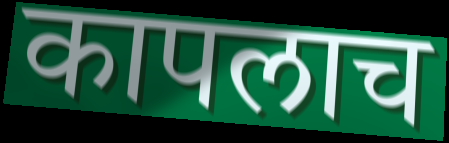
कापलाच